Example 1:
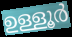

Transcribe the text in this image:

ഉള്ളൂർ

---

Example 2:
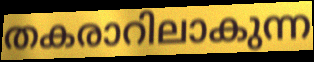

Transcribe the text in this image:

തകരാറിലാകുന്ന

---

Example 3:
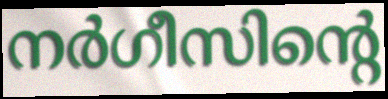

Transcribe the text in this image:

നർഗീസിന്റെ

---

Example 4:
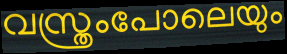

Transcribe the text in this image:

വസ്ത്രംപോലെയും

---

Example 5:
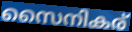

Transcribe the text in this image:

സൈനികര്